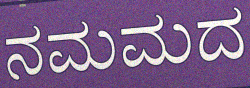
ನಮಮದ